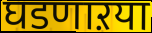
घडणाऱया